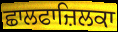
ਛਾਲਫਾਜ਼ਿਲਕਾ